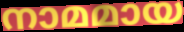
നാമമായ